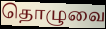
தொழுவை